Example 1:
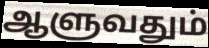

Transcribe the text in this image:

ஆளுவதும்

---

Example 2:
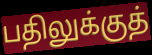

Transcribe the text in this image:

பதிலுக்குத்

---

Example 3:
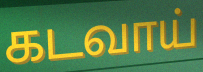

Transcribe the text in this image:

கடவாய்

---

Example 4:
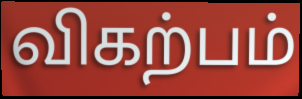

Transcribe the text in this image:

விகற்பம்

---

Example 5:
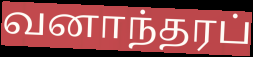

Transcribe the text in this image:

வனாந்தரப்